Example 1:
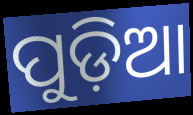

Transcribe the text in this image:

ପୁଡ଼ିଆ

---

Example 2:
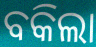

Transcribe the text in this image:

ବକିଲା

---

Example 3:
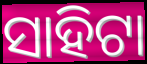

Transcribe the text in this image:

ସାହିଟା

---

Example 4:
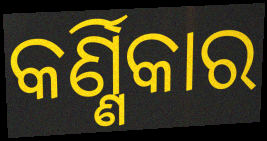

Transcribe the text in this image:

କର୍ଣ୍ଣିକାର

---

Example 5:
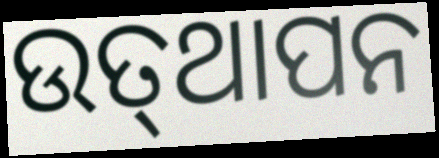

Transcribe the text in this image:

ଉତ୍‌ଥାପନ